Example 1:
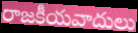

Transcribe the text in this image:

రాజకీయవాదులు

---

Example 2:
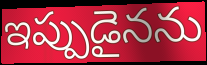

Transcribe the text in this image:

ఇప్పుడైనను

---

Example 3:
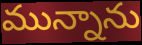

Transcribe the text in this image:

మున్నాను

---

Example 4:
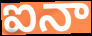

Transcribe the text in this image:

ఐనా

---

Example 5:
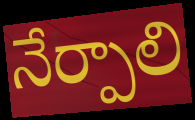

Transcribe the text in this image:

నేర్పాలి